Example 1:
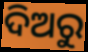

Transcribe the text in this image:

ଦିଅରୁ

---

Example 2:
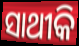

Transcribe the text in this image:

ସାଥୀକି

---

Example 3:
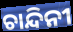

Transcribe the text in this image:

ଚାନ୍ଦିନୀ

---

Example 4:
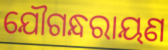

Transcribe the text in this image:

ଯୌଗନ୍ଧରାୟଣ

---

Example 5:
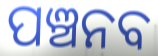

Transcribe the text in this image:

ପଞ୍ଚନବ